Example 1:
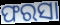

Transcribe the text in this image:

ଫରସା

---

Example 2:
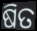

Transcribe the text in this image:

ଷିତ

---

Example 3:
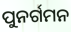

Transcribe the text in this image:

ପୁନର୍ଗମନ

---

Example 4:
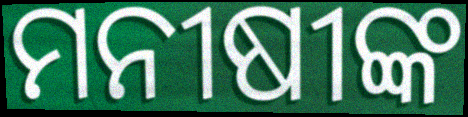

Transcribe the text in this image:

ମନୀଷୀଙ୍କ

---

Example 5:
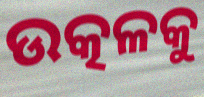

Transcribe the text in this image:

ଉତ୍କଳକୁ